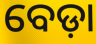
ବେଡ଼ା